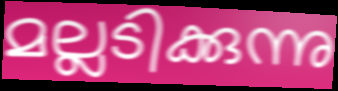
മല്ലടിക്കുന്നു